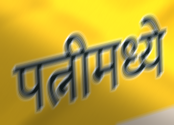
पत्नीमध्ये